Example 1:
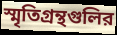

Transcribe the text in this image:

স্মৃতিগ্রন্থগুলির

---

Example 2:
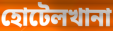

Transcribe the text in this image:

হোটেলখানা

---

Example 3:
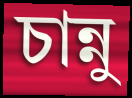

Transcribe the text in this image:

চান্নু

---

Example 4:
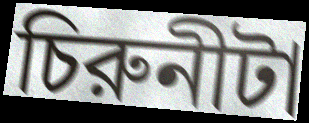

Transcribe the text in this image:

চিরুনীটা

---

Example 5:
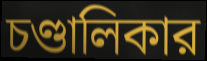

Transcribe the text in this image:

চণ্ডালিকার